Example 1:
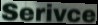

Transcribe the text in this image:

Serivce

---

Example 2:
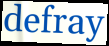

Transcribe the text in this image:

defray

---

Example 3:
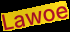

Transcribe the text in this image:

Lawoe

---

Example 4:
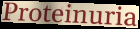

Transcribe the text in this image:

Proteinuria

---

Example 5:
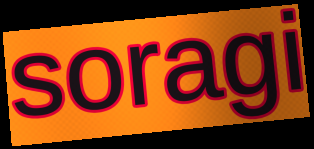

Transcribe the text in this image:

soragi